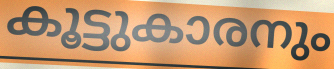
കൂട്ടുകാരനും